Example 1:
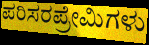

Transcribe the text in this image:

ಪರಿಸರಪ್ರೇಮಿಗಳು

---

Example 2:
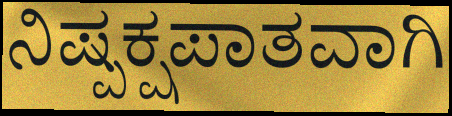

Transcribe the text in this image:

ನಿಷ್ಪಕ್ಷಪಾತವಾಗಿ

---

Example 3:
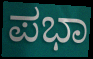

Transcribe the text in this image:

ಪಭಾ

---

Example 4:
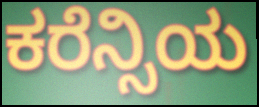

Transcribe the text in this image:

ಕರೆನ್ಸಿಯ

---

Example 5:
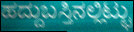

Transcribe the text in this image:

ಹದ್ದುಬಸ್ತಿನಲ್ಲಿಟ್ಟು